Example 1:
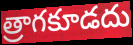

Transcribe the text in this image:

త్రాగకూడదు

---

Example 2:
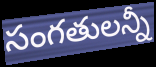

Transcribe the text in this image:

సంగతులన్నీ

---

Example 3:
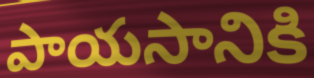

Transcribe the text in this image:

పాయసానికి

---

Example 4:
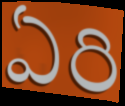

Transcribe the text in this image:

ఏరి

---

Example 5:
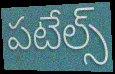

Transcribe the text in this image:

పటేల్స్